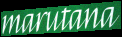
marutana